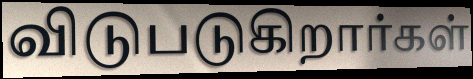
விடுபடுகிறார்கள்